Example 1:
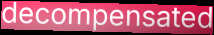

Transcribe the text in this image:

decompensated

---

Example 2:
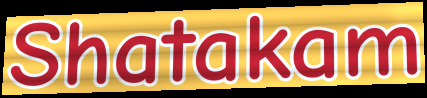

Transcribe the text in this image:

Shatakam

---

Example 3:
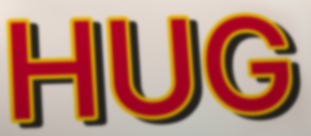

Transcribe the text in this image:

HUG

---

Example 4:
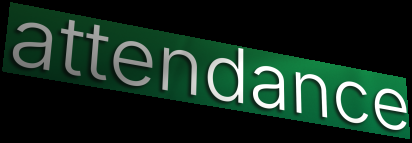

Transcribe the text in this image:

attendance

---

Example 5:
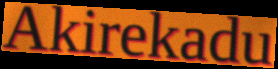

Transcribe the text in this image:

Akirekadu